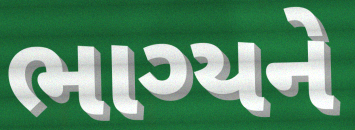
ભાગ્યને